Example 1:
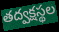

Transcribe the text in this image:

తద్వక్షస్థల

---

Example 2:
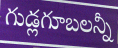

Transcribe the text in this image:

గుడ్లగూబలన్నీ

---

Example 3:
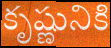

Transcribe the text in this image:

కృష్ణునికి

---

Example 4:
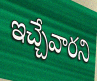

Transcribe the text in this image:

ఇచ్చేవారని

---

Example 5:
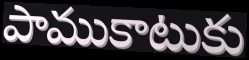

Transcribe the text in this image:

పాముకాటుకు